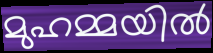
മുഹമ്മയിൽ